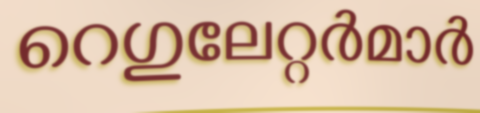
റെഗുലേറ്റർമാർ